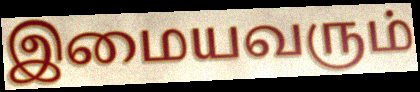
இமையவரும்